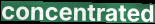
concentrated